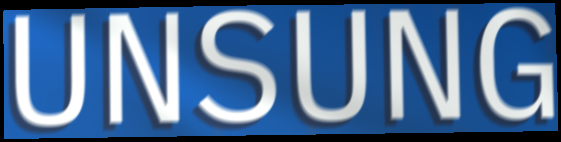
UNSUNG